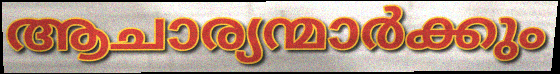
ആചാര്യന്മാർക്കും